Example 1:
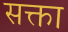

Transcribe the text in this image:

सक्ता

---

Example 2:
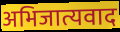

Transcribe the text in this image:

अभिजात्यवाद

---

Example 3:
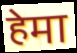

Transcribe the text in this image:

हेमा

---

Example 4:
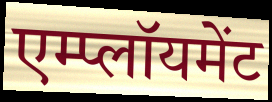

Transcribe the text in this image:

एम्प्लॉयमेंट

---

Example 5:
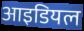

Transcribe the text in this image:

आइडियल